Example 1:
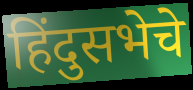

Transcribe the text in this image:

हिंदुसभेचे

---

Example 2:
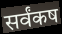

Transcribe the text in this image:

सर्वंकष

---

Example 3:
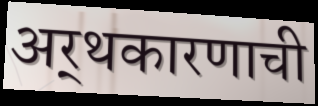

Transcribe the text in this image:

अर्थकारणाची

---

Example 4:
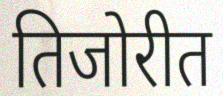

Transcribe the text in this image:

तिजोरीत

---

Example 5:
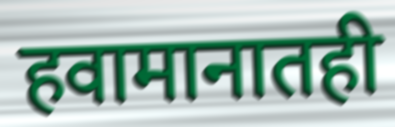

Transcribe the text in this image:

हवामानातही